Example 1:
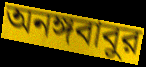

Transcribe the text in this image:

অনঙ্গবাবুর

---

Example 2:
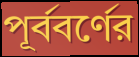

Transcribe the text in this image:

পূর্ববর্ণের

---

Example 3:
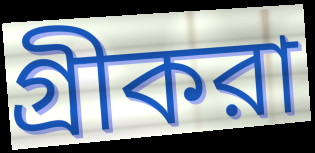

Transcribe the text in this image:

গ্রীকরা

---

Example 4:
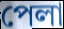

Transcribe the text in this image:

পেলা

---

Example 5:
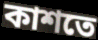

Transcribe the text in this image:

কাশতে